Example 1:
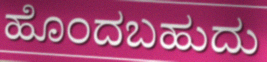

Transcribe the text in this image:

ಹೊಂದಬಹುದು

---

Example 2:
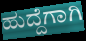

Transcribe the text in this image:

ಹುದ್ದೆಗಾಗಿ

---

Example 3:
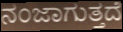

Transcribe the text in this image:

ನಂಜಾಗುತ್ತದೆ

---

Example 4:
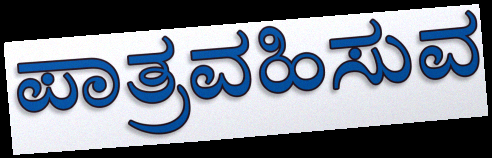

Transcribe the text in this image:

ಪಾತ್ರವಹಿಸುವ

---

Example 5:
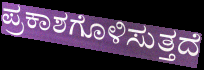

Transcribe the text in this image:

ಪ್ರಕಾಶಗೊಳಿಸುತ್ತದೆ